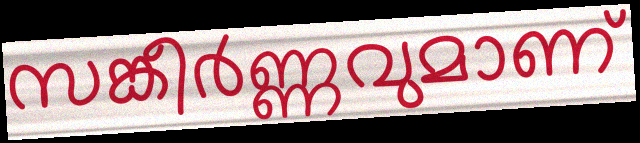
സങ്കീർണ്ണവുമാണ്